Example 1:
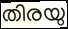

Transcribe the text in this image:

തിരയു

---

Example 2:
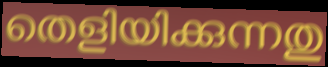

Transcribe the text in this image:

തെളിയിക്കുന്നതു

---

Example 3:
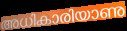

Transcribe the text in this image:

അധികാരിയാണു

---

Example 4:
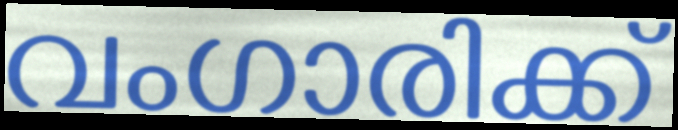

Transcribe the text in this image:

വംഗാരിക്ക്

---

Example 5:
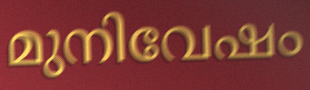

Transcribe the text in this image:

മുനിവേഷം